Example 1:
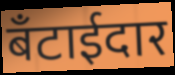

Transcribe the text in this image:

बँटाईदार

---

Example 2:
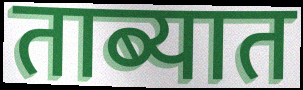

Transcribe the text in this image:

ताब्यात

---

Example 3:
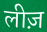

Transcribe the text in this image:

लीज़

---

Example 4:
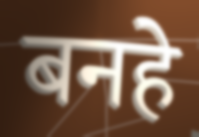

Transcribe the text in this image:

बनहे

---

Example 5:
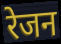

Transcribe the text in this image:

रेजन